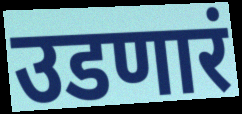
उडणारं